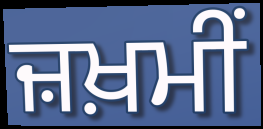
ਜ਼ਖ਼ਮੀਂ